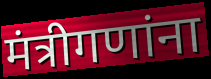
मंत्रीगणांना